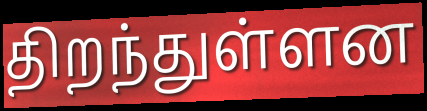
திறந்துள்ளன